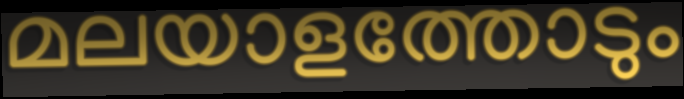
മലയാളത്തോടും